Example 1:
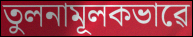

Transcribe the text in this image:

তুলনামূলকভাৱে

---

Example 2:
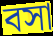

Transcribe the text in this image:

বসা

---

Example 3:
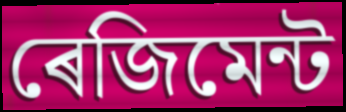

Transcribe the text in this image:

ৰেজিমেন্ট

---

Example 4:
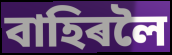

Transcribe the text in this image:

বাহিৰলৈ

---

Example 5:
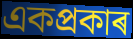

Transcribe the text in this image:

একপ্ৰকাৰ